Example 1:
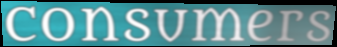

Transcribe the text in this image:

consumers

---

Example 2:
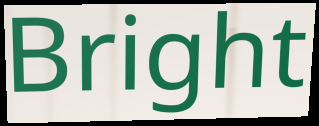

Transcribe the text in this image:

Bright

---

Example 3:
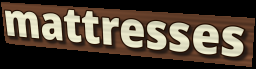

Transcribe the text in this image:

mattresses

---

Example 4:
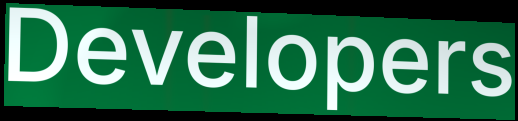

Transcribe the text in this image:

Developers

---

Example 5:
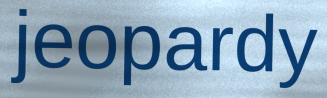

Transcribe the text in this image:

jeopardy